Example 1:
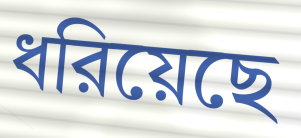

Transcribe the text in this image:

ধরিয়েছে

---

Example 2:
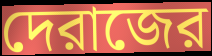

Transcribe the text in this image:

দেরাজের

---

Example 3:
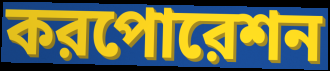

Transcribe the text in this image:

করপোরেশন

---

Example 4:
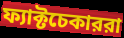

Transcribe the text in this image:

ফ্যাক্টচেকাররা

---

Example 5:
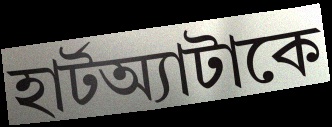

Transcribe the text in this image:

হার্টঅ্যাটাকে